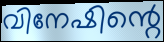
വിനേഷിന്റെ